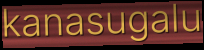
kanasugalu